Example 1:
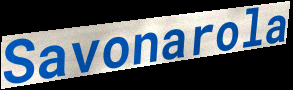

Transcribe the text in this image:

Savonarola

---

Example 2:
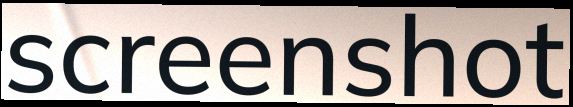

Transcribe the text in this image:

screenshot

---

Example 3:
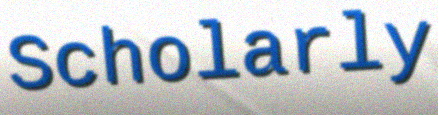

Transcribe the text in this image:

Scholarly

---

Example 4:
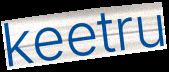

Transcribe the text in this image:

keetru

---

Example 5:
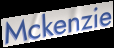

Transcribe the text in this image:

Mckenzie